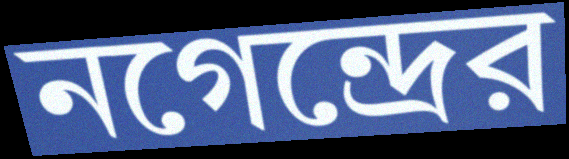
নগেন্দ্রের